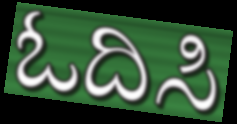
ಓದಿಸಿ